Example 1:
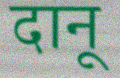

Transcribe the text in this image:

दानू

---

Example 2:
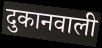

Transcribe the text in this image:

दुकानवाली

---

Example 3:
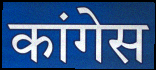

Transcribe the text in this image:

कांगेस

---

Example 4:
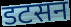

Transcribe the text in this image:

डटसन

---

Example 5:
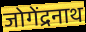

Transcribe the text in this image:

जोगेंद्रनाथ